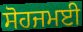
ਸੋਹਜਮਈ